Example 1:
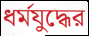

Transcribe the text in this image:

ধর্মযুদ্ধের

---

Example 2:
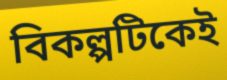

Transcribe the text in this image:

বিকল্পটিকেই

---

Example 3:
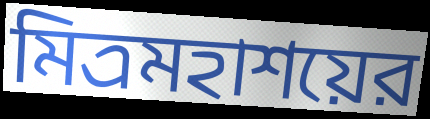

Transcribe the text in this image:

মিত্রমহাশয়ের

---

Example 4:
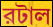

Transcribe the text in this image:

রটাল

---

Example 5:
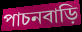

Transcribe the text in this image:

পাচনবাড়ি